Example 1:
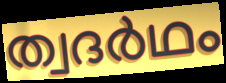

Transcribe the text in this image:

ത്വദർഥം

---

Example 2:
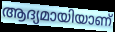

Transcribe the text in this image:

ആദ്യമായിയാണ്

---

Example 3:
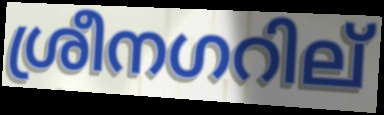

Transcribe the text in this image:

ശ്രീനഗറില്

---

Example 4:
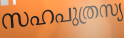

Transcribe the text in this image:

സഹപുത്രസ്യ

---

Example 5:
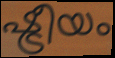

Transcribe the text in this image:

ഷ്ട്രീയം